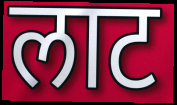
लाट